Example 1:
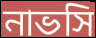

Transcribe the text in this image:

নাভসি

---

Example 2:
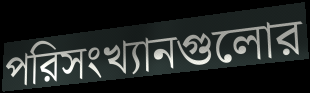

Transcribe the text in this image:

পরিসংখ্যানগুলোর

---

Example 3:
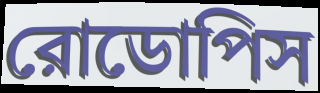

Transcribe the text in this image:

রোডোপিস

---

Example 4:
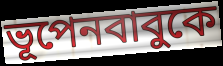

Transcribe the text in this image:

ভূপেনবাবুকে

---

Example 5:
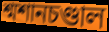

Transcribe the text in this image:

শ্মশানচণ্ডাল